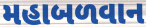
મહાબળવાન